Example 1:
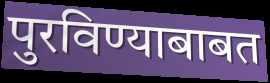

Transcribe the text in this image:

पुरविण्याबाबत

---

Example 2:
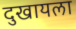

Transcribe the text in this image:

दुखायला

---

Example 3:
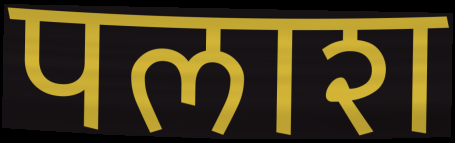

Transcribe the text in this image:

पलाश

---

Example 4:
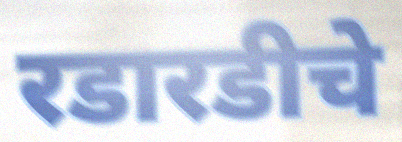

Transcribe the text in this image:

रडारडीचे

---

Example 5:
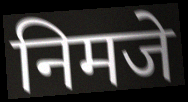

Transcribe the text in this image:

निमजे